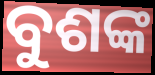
ବୁଶଙ୍କ